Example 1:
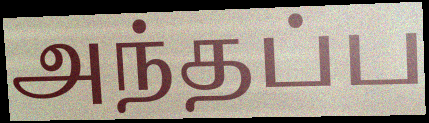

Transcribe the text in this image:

அந்தப்ப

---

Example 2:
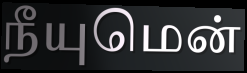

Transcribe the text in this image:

நீயுமென்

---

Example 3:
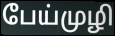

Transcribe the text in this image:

பேய்முழி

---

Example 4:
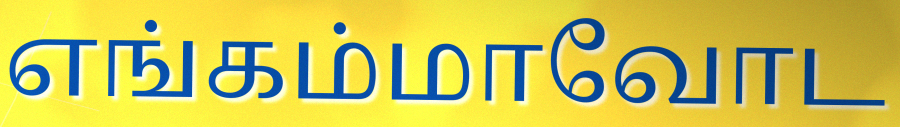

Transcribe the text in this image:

எங்கம்மாவோட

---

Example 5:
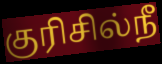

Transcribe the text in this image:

குரிசில்நீ